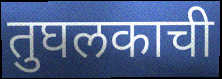
तुघलकाची